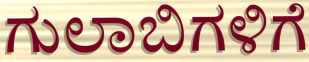
ಗುಲಾಬಿಗಳಿಗೆ